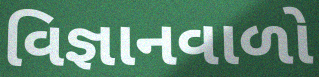
વિજ્ઞાનવાળો